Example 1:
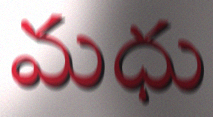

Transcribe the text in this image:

మధు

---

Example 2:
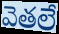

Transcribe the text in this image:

వెతలే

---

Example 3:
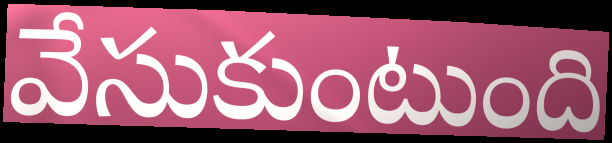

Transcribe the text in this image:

వేసుకుంటుంది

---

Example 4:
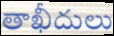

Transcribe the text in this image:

తాఖీదులు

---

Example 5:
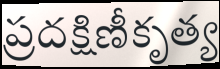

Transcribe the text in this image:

ప్రదక్షిణీకృత్య